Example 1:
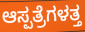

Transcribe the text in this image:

ಆಸ್ಪತ್ರೆಗಳತ್ತ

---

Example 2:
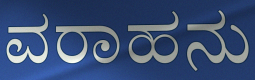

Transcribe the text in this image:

ವರಾಹನು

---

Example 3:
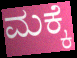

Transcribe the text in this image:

ಮಕ್ಕೆ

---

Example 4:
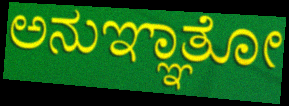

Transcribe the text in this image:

ಅನುಞ್ಞಾತೋ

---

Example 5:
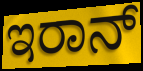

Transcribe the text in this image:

ಇರಾನ್